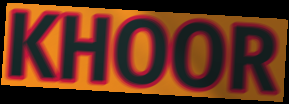
KHOOR